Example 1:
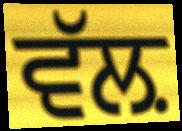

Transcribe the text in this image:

ਵੱਲ਼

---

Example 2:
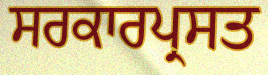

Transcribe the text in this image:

ਸਰਕਾਰਪ੍ਰਸਤ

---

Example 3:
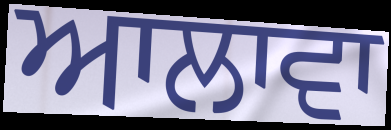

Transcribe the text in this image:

ਆਲਾਵਾ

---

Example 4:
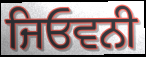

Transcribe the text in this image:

ਜਿਓਵਨੀ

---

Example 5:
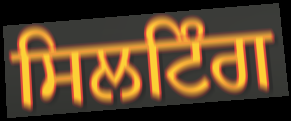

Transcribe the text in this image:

ਸਿਲਟਿੰਗ